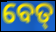
ବେତ୍